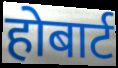
होबार्ट